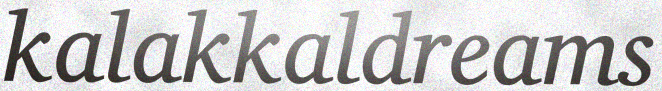
kalakkaldreams